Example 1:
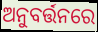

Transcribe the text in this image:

ଅନୁବର୍ତ୍ତନରେ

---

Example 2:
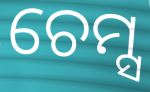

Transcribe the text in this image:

ଚେମ୍ସ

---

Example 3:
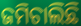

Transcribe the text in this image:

ଜମିଚାଲିଛି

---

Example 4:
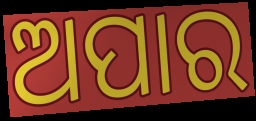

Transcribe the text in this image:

ଅପାର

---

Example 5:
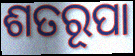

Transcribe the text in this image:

ଶତରୂପା